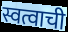
स्वत्वाची